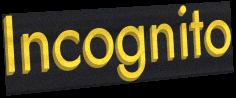
Incognito